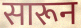
सारून